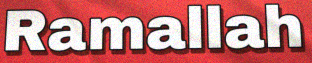
Ramallah